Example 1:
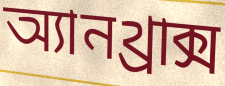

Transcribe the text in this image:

অ্যানথ্রাক্স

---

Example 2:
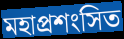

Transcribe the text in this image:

মহাপ্রশংসিত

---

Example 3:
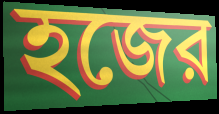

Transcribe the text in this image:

হজের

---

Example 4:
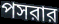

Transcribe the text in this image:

পসরার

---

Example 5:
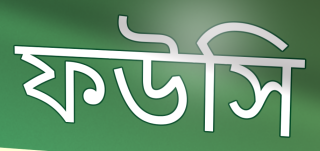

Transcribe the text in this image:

ফউসি